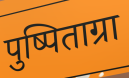
पुष्पिताग्रा